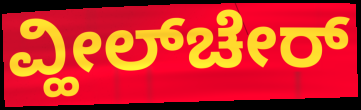
ವ್ಹೀಲ್‌ಚೇರ್